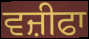
ਵਜ਼ੀਫਾ